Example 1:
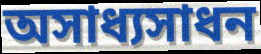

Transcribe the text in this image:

অসাধ্যসাধন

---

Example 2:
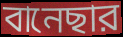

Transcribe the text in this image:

বানেছার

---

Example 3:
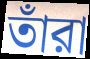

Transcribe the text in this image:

তাঁরা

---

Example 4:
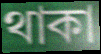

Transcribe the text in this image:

থাকা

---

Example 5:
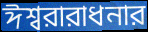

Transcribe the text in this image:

ঈশ্বরারাধনার